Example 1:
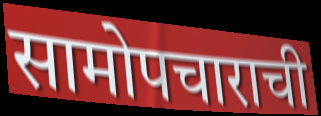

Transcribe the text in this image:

सामोपचाराची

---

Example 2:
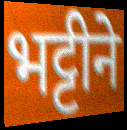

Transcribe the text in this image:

भट्टीने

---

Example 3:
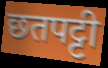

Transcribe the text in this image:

छतपट्टी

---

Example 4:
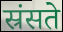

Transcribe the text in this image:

स्रंसते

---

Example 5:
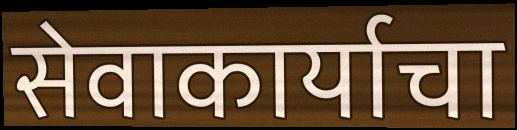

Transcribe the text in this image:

सेवाकार्याचा